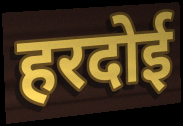
हरदोई